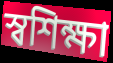
স্বশিক্ষা